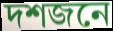
দশজনে